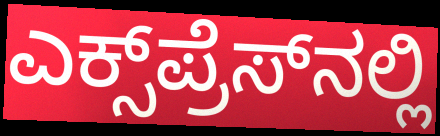
ಎಕ್ಸ್‌ಪ್ರೆಸ್‌ನಲ್ಲಿ